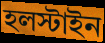
হলস্টাইন